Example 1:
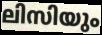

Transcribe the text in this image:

ലിസിയും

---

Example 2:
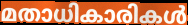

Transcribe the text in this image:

മതാധികാരികൾ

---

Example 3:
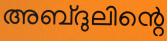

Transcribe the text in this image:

അബ്ദുലിന്റെ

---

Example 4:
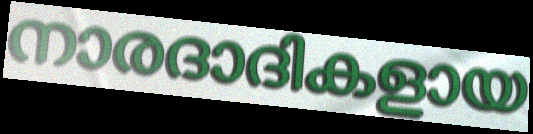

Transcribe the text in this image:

നാരദാദികളായ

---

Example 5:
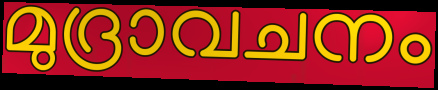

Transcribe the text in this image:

മുദ്രാവചനം